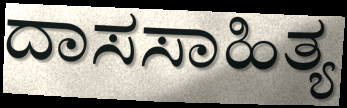
ದಾಸಸಾಹಿತ್ಯ